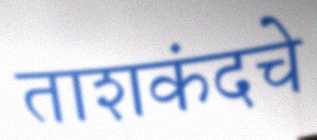
ताशकंदचे